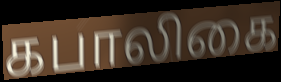
கபாலிகை